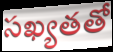
సఖ్యతతో